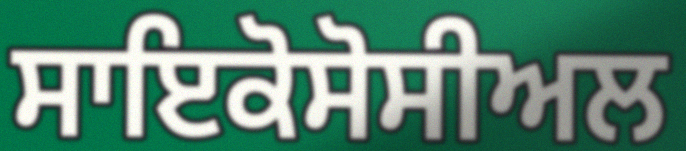
ਸਾਇਕੋਸੋਸੀਅਲ